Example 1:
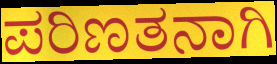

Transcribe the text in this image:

ಪರಿಣತನಾಗಿ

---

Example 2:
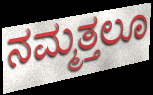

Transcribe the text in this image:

ನಮ್ಮತ್ತಲೂ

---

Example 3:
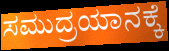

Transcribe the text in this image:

ಸಮುದ್ರಯಾನಕ್ಕೆ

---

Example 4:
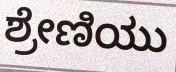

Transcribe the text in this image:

ಶ್ರೇಣಿಯು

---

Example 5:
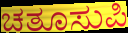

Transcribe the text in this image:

ಚತೂಸುಪಿ